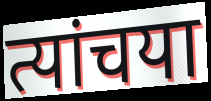
त्यांचया